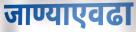
जाण्याएवढा